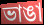
ভাঙা